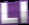
LI